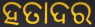
ହତାଦର